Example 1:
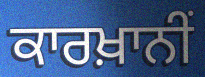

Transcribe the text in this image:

ਕਾਰਖ਼ਾਨੀਂ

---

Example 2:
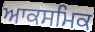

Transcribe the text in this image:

ਆਕਸਮਿਕ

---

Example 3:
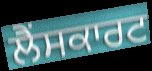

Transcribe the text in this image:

ਲੈਂਸਕਾਰਟ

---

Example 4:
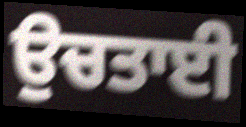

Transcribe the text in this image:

ਉਚਤਾਈ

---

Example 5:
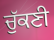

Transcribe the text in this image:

ਚੁੱਕਣੀ